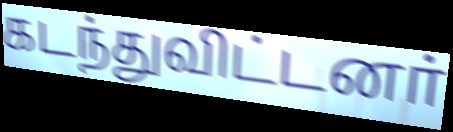
கடந்துவிட்டனர்